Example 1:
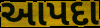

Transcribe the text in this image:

આપદા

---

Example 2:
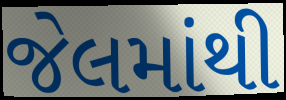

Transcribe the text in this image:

જેલમાંથી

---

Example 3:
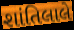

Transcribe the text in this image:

શાંતિલાલે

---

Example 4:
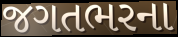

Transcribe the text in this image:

જગતભરના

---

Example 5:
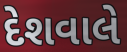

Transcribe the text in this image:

દેશવાલે